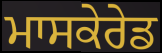
ਮਾਸਕੇਰੇਡ